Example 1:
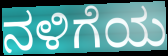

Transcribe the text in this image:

ನಳಿಗೆಯ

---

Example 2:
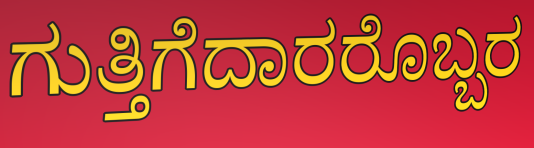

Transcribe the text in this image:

ಗುತ್ತಿಗೆದಾರರೊಬ್ಬರ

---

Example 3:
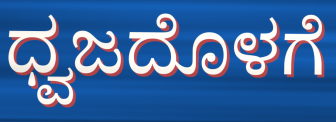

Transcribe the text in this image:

ಧ್ವಜದೊಳಗೆ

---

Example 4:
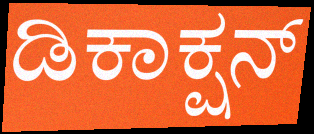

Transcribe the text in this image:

ಡಿಕಾಕ್ಷನ್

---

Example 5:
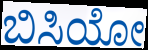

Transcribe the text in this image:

ಬಿಸಿಯೋ